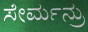
ಸೇರ್ಮನ್ರು